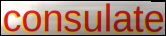
consulate